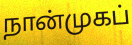
நான்முகப்